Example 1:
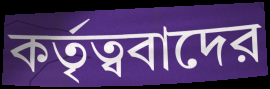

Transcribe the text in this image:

কর্তৃত্ববাদের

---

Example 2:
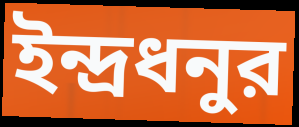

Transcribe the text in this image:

ইন্দ্রধনুর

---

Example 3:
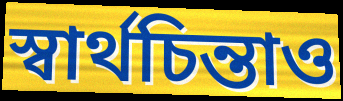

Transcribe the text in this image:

স্বার্থচিন্তাও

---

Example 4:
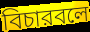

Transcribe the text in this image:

বিচারবলে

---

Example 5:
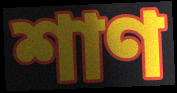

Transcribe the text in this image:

শাণ